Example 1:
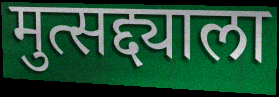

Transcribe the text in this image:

मुत्सद्द्याला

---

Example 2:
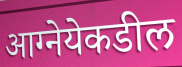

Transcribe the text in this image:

आग्नेयेकडील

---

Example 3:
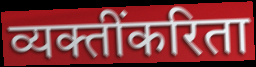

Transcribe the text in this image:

व्यक्तींकरिता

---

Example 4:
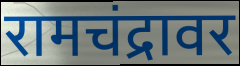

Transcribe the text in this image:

रामचंद्रावर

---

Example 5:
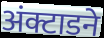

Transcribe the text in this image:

अंक्टाडने